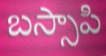
బస్సాపి